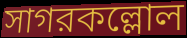
সাগরকল্লোল